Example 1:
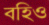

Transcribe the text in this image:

বহিও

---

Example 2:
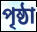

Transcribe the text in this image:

পৃষ্ঠা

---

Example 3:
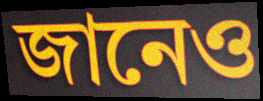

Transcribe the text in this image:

জানেও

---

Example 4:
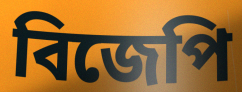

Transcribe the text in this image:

বিজেপি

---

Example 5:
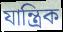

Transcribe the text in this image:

যান্ত্ৰিক